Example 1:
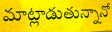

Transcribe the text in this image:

మాట్లాడుతున్నానో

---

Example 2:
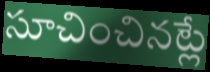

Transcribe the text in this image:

సూచించినట్లే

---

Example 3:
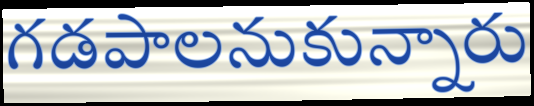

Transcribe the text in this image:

గడపాలనుకున్నారు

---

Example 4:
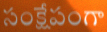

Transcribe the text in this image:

సంక్షేపంగా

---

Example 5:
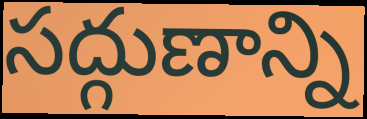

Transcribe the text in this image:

సద్గుణాన్ని